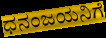
ಧನಂಜಯನಿಗೆ